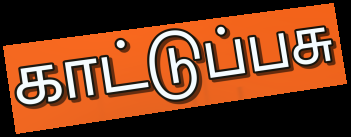
காட்டுப்பசு